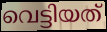
വെട്ടിയത്